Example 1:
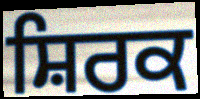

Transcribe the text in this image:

ਸ਼ਿਰਕ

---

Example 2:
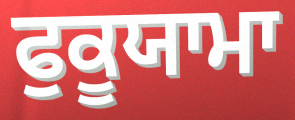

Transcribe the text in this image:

ਫੁਕੂਯਾਮਾ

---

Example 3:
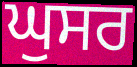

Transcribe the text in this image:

ਘੁਸਰ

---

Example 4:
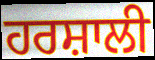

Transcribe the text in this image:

ਹਰਸ਼ਾਲੀ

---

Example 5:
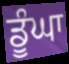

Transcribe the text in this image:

ਡੂੰਘਾ